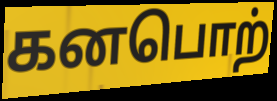
கனபொற்